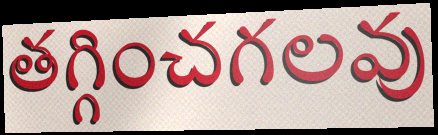
తగ్గించగలవు